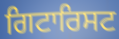
ਗਿਟਾਰਿਸਟ